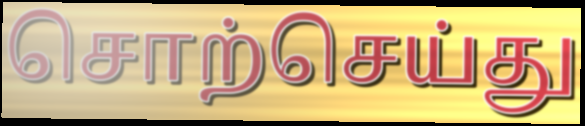
சொற்செய்து